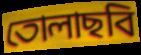
তোলাছবি